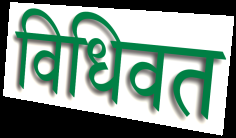
विधिवत